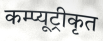
कम्प्यूट्रीकृत